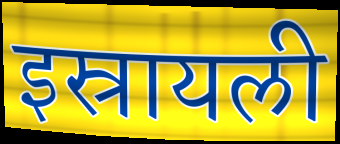
इस्रायली